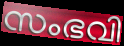
സംഭവി